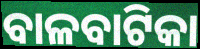
ବାଳବାଟିକା